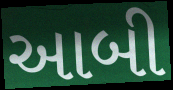
આબી